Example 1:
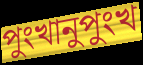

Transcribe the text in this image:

পুংখানুপুংখ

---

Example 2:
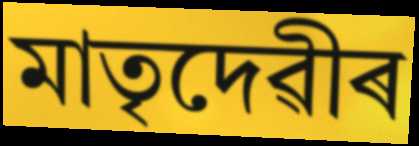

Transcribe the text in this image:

মাতৃদেৱীৰ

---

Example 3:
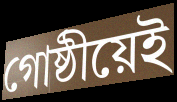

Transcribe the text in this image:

গোষ্ঠীয়েই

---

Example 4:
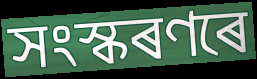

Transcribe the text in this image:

সংস্কৰণৰে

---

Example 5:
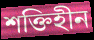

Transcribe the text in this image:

শক্তিহীন